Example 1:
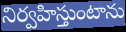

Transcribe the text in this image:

నిర్వహిస్తుంటాను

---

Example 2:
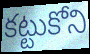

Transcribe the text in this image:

కట్టుకోని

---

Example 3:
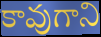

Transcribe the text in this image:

కావుగాని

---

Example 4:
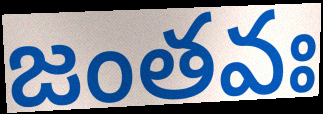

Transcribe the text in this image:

జంతవః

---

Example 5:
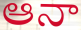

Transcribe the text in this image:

ఆనా